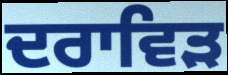
ਦਰਾਵਿੜ